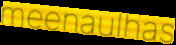
meenaulhas